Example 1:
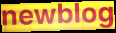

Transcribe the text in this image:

newblog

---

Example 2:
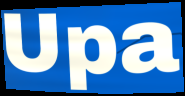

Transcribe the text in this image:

Upa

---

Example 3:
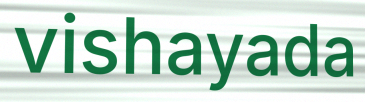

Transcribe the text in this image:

vishayada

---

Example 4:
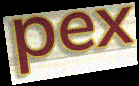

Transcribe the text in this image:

pex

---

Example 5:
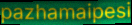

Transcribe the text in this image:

pazhamaipesi